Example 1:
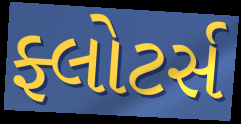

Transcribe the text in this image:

ફ્લોટર્સ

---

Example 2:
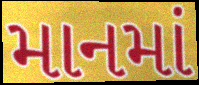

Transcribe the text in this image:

માનમાં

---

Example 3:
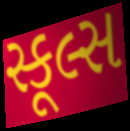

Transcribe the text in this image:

સ્કૂલ્સ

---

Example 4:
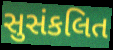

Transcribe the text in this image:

સુસંકલિત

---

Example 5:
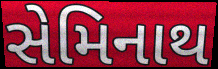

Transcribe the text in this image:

સેમિનાથ